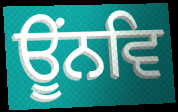
ਊਂਨਵਿ